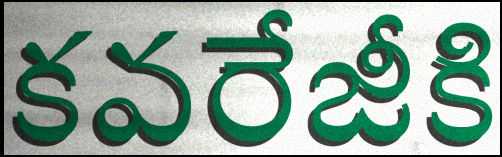
కవరేజీకి